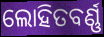
ଲୋହିତବର୍ଣ୍ଣ